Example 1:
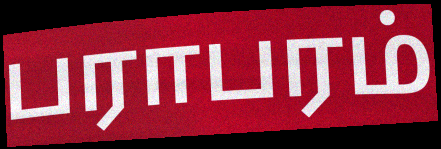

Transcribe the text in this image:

பராபரம்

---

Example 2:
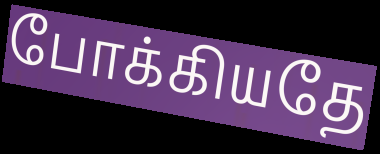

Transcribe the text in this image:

போக்கியதே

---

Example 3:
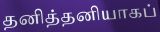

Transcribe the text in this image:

தனித்தனியாகப்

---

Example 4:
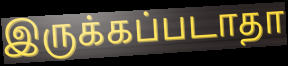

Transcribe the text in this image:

இருக்கப்படாதா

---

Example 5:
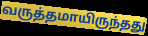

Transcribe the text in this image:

வருத்தமாயிருந்தது